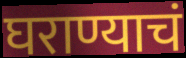
घराण्याचं